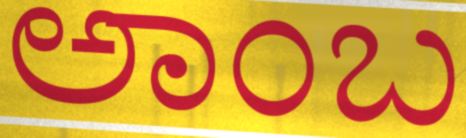
ಅಾಂಬ